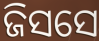
ଜିସସେ